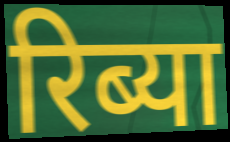
रिब्या